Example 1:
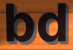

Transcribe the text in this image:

bd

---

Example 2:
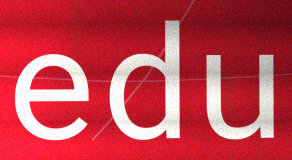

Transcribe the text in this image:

edu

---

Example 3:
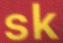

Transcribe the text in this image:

sk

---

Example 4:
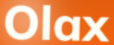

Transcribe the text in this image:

Olax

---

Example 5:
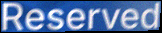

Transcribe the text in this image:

Reserved